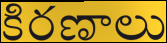
కిరణాలు